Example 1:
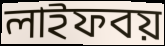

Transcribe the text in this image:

লাইফবয়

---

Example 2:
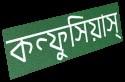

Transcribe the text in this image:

কন্ফুসিয়াস্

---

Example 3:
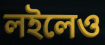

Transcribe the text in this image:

লইলেও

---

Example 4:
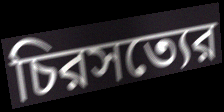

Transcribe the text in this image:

চিরসত্যের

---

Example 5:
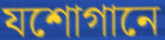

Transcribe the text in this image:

যশোগানে